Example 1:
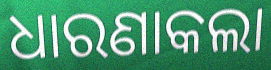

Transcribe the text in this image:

ଧାରଣାକଲା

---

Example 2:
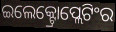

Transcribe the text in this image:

ଇଲେକ୍ଟ୍ରୋପ୍ଲେଟିଂର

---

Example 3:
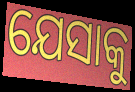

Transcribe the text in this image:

ଯେସାକୁ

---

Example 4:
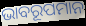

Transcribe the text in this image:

ଭାବରୂପମାନ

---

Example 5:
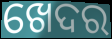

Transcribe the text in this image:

ଖେଦର